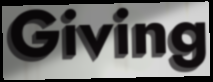
Giving